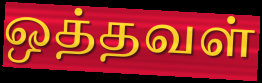
ஒத்தவள்